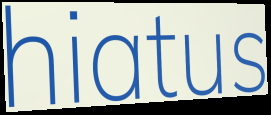
hiatus